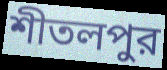
শীতলপুর